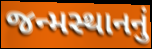
જન્મસ્થાનનું